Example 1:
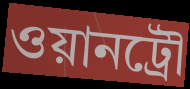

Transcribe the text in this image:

ওয়ানট্রৌ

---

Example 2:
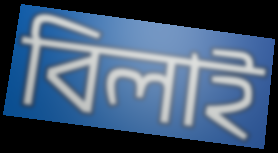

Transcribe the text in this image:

বিলাই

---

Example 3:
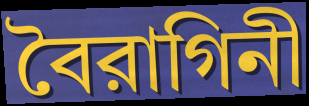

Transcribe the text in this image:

বৈরাগিনী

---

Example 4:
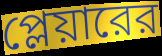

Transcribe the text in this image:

প্লেয়ারের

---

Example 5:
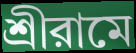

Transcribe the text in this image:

শ্রীরামে